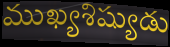
ముఖ్యశిష్యుడు